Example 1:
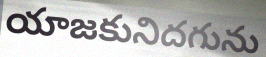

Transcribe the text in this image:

యాజకునిదగును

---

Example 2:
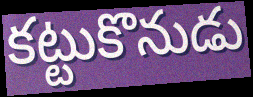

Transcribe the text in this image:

కట్టుకొనుడు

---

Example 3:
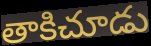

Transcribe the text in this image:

తాకిచూడు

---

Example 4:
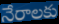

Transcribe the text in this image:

నేరాలకు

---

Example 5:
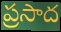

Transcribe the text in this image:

ప్రసాద